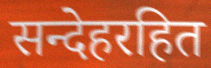
सन्देहरहित